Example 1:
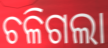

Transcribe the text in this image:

ଚଳିଗଲା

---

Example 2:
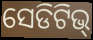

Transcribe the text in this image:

ସେଡିଟିଭ୍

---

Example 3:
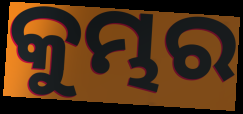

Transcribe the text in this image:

କୁମ୍ଭର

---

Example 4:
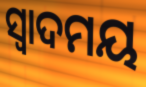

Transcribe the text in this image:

ସ୍ଵାଦମୟ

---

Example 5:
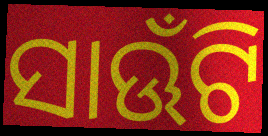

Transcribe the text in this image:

ସାଊଁଟି